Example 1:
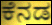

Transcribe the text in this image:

ಕೆನಡ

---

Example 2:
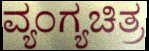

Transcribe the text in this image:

ವ್ಯಂಗ್ಯಚಿತ್ರ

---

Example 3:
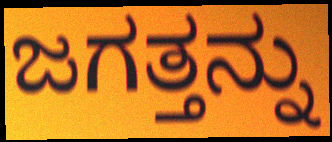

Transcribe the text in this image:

ಜಗತ್ತನ್ನು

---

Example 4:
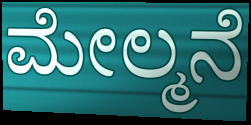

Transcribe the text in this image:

ಮೇಲ್ಮನೆ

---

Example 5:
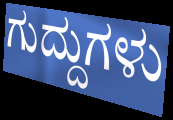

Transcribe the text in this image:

ಗುದ್ದುಗಳು